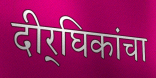
दीर्घिकांचा